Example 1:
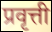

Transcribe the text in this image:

प्रवृत्ती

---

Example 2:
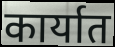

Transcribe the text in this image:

कार्यात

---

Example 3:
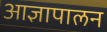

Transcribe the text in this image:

आज्ञापालन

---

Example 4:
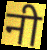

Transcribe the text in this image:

नी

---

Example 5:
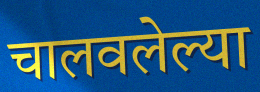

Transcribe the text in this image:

चालवलेल्या